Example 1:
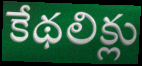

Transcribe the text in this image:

కేథలిక్లు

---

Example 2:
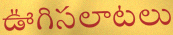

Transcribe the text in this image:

ఊగిసలాటలు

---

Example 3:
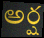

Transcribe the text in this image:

అర్ష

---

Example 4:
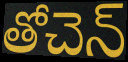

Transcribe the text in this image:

తోచెన్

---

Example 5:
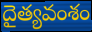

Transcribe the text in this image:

దైత్యవంశం